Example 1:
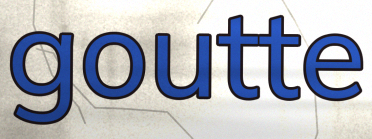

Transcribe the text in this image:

goutte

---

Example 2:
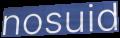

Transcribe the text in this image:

nosuid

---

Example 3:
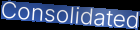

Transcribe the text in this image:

Consolidated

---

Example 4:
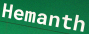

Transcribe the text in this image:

Hemanth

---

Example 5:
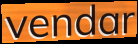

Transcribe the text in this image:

vendar